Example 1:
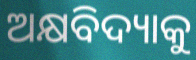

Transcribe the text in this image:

ଅକ୍ଷବିଦ୍ୟାକୁ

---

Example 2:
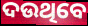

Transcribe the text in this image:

ଦଉଥିବେ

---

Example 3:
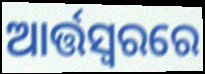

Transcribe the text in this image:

ଆର୍ତ୍ତସ୍ଵରରେ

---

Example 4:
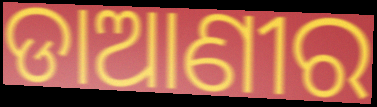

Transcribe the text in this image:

ଡାଆଣୀର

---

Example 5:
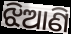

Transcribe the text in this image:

ଝିଆଣି